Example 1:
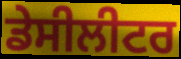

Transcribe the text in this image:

ਡੇਸੀਲੀਟਰ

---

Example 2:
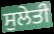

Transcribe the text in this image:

ਸੁਲੇਤੀ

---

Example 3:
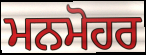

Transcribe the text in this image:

ਮਨਮੋਹਰ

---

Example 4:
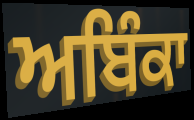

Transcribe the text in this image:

ਅਬਿੰਕਾ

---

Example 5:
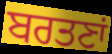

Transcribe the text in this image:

ਬਰਤਣਾਂ